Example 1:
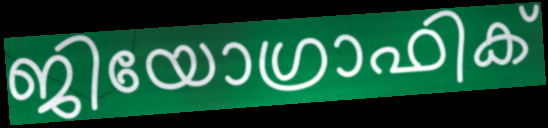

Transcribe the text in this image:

ജിയോഗ്രാഫിക്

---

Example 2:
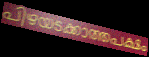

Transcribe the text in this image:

പിഴയടക്കാത്തപക്ഷം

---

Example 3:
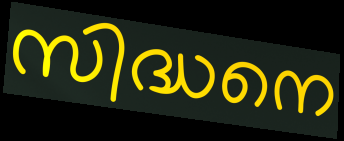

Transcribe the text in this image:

സിദ്ധനെ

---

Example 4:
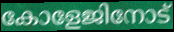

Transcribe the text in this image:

കോളേജിനോട്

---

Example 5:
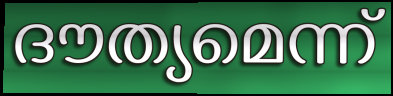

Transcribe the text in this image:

ദൗത്യമെന്ന്